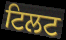
ਟਿਲਟ